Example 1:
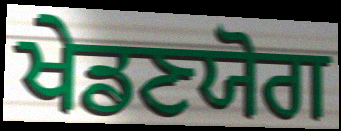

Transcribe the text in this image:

ਖੇਡਣਯੋਗ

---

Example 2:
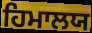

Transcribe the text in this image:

ਹਿਮਾਲਯ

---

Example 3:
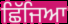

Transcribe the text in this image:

ਛਿੱਜਿਆ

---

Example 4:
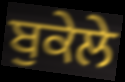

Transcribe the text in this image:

ਬੁਕੇਲੇ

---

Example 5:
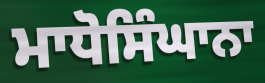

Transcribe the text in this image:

ਮਾਧੋਸਿੰਘਾਨਾ